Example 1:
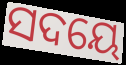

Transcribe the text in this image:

ସଦୟେ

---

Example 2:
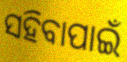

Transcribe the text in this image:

ସହିବାପାଇଁ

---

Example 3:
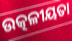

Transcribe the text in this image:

ଉତ୍କଳୀୟତା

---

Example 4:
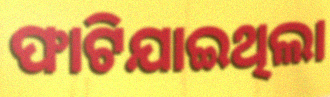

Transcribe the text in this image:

ଫାଟିଯାଇଥିଲା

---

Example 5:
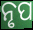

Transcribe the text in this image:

ନୃପ